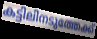
കട്ടിലിനടുത്തേക്ക്